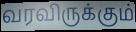
வரவிருக்கும்